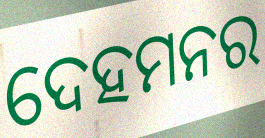
ଦେହମନର